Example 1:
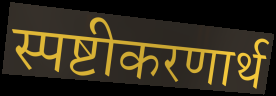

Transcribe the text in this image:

स्पष्टीकरणार्थ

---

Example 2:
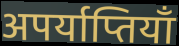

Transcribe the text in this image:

अपर्याप्तियाँ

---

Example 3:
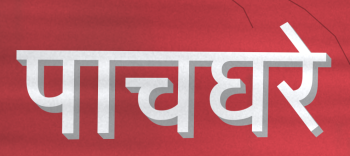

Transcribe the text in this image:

पाचघरे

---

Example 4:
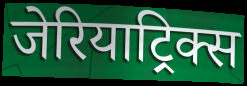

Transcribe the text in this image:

जेरियाट्रिक्स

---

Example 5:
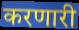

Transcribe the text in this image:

करणारी